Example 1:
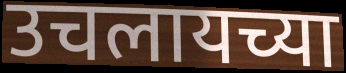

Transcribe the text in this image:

उचलायच्या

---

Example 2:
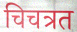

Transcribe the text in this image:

चिचत्रत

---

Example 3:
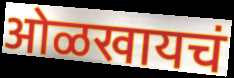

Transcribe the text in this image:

ओळखायचं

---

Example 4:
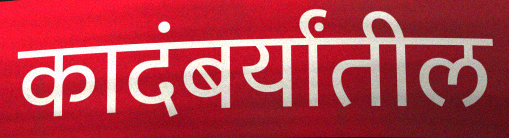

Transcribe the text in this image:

कादंबर्यांतील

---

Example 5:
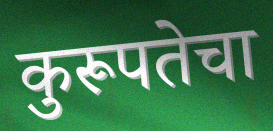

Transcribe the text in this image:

कुरूपतेचा